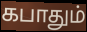
கபாதும்